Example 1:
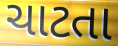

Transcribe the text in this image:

ચાટતા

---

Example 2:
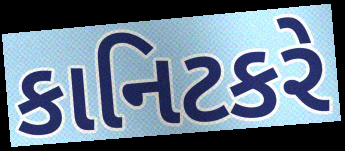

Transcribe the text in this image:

કાનિટકરે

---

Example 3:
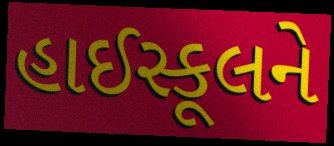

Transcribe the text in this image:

હાઈસ્કૂલને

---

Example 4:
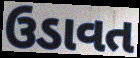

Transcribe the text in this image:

ઉડાવત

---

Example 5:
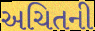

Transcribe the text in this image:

અચિતની